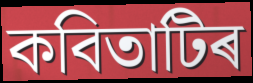
কবিতাটিৰ